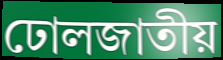
ঢোলজাতীয়